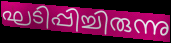
ഘടിപ്പിച്ചിരുന്നു